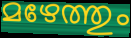
മഴേത്തും